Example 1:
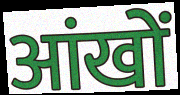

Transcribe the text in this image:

आंखों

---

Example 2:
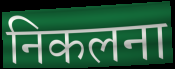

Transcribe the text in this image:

निकलना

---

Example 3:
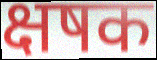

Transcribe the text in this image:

क्षषक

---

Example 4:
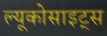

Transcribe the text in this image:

ल्यूकोसाइट्स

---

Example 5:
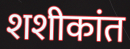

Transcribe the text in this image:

शशीकांत